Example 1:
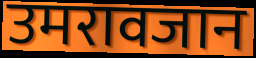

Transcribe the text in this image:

उमरावजान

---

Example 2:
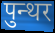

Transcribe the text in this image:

पुन्थर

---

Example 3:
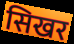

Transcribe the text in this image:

सिखर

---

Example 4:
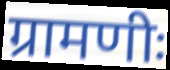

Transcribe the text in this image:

ग्रामणीः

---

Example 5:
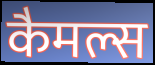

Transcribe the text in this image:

कैमल्स